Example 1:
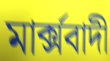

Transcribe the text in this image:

মার্ক্সবাদী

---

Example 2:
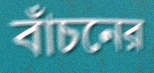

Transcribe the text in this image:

বাঁচনের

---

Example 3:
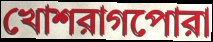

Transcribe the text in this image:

খোশরাগপোরা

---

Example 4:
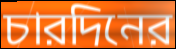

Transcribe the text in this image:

চারদিনের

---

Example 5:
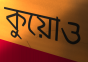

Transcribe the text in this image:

কুয়োও